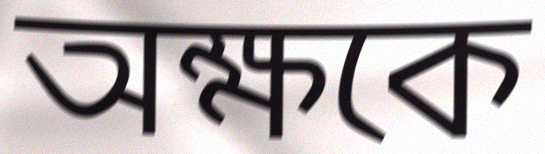
অক্ষকে